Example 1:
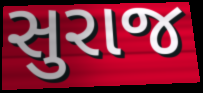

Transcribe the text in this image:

સુરાજ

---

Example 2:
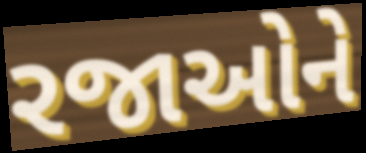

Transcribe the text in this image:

રજાઓને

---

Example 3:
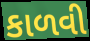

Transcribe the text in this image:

કાળવી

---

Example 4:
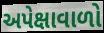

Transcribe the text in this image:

અપેક્ષાવાળો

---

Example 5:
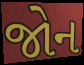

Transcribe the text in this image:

જોન